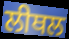
ਲੀਥਲ